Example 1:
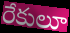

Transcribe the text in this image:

రేకులూ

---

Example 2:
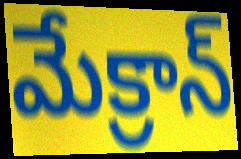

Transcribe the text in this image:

మేక్రాన్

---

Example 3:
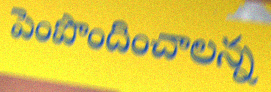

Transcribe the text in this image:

పెంపొందించాలన్న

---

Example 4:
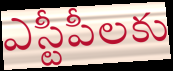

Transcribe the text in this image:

ఎస్టీపీలకు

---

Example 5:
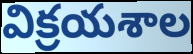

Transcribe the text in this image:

విక్రయశాల